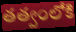
తత్వంలోకి